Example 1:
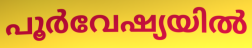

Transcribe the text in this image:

പൂർവേഷ്യയിൽ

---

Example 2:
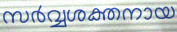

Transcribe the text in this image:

സർവ്വശക്തനായ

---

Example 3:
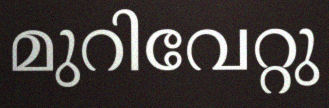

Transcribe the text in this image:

മുറിവേറ്റു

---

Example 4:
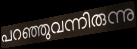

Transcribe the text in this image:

പറഞ്ഞുവന്നിരുന്നു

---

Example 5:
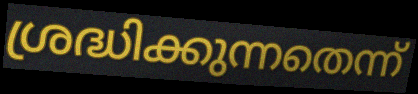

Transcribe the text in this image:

ശ്രദ്ധിക്കുന്നതെന്ന്